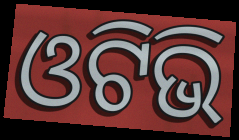
ଓଟିଭି